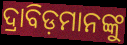
ଦ୍ରାବିଡ଼ମାନଙ୍କୁ